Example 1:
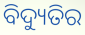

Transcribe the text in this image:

ବିଦ୍ୟୁତିର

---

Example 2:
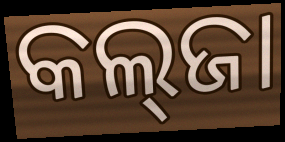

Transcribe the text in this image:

କଲ୍‌ଜା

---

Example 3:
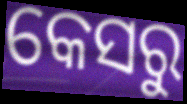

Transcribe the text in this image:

କେସରୁ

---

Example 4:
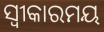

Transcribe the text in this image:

ସ୍ଵୀକାରମୟ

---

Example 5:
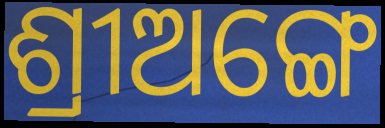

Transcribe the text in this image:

ଶ୍ରୀଅଙ୍ଗେ